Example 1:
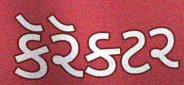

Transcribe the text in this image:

કૅરૅક્ટર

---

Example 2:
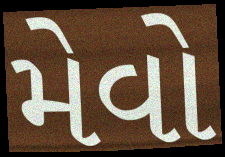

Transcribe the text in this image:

મેવો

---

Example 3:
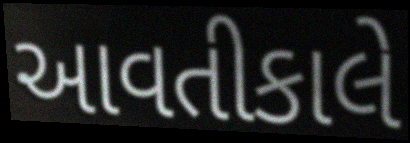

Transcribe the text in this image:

આવતીકાલે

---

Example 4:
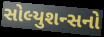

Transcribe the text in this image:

સોલ્યુશન્સનો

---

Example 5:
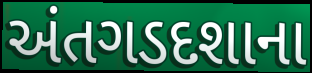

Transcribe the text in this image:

અંતગડદશાના